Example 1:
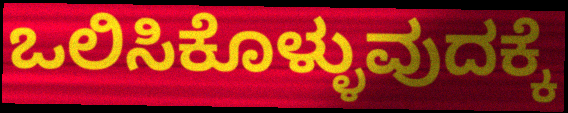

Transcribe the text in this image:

ಒಲಿಸಿಕೊಳ್ಳುವುದಕ್ಕೆ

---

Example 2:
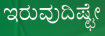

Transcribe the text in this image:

ಇರುವುದಿಷ್ಟೇ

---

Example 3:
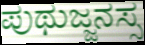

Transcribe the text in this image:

ಪುಥುಜ್ಜನಸ್ಸ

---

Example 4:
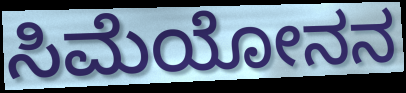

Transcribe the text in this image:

ಸಿಮೆಯೋನನ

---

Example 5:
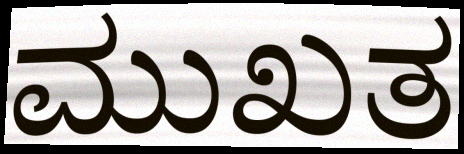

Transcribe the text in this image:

ಮುಖತ